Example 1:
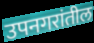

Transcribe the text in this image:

उपनगरांतील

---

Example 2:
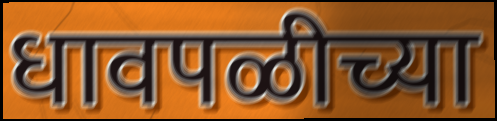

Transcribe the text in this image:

धावपळीच्या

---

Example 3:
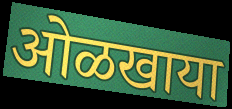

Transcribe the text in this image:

ओळखाया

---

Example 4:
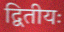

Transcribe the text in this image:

द्वितीयः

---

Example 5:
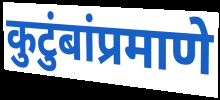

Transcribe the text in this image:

कुटुंबांप्रमाणे